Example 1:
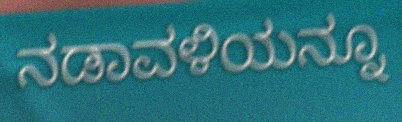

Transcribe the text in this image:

ನಡಾವಳಿಯನ್ನೂ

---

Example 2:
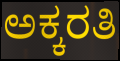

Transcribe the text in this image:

ಅಕ್ಕರತಿ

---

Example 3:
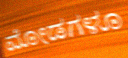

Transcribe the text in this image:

ಮೋಡಗಳೂ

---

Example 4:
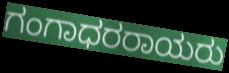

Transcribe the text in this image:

ಗಂಗಾಧರರಾಯರು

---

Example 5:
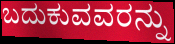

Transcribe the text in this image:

ಬದುಕುವವರನ್ನು